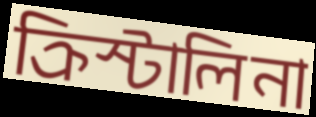
ক্রিস্টালিনা